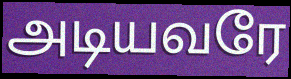
அடியவரே